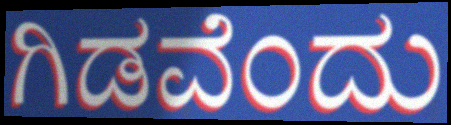
ಗಿಡವೆಂದು